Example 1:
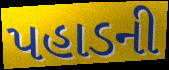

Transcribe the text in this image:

પહાડની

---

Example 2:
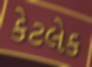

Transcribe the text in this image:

કેટલેક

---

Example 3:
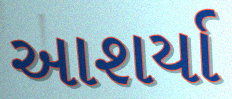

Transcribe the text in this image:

આશર્યા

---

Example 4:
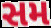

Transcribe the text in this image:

સમ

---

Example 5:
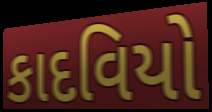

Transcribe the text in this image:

કાદવિયો